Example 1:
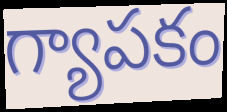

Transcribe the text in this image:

గ్యాపకం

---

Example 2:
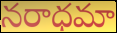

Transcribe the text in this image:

నరాధమా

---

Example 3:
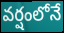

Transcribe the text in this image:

వర్షంలోనే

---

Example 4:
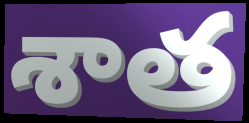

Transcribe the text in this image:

శాత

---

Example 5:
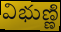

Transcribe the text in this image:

విభుణ్ణి